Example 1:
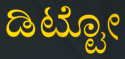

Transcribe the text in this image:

ಡಿಟ್ಟೋ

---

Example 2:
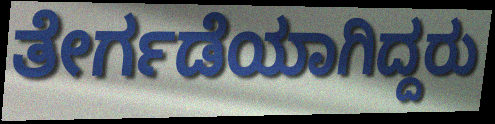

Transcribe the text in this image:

ತೇರ್ಗಡೆಯಾಗಿದ್ದರು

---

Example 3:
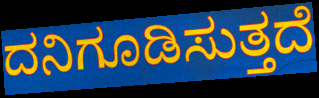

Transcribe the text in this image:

ದನಿಗೂಡಿಸುತ್ತದೆ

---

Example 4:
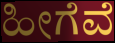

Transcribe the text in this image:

ಹೀಗೆವೆ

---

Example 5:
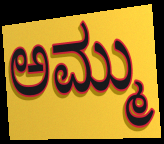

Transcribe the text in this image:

ಅಮ್ಮು